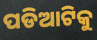
ପଡିଆଟିକୁ